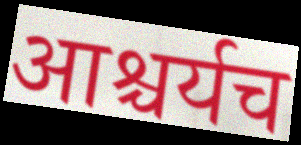
आश्चर्यच